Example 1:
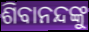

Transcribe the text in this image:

ଶିବାନନ୍ଦଙ୍କୁ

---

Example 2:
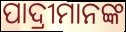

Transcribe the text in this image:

ପାଦ୍ରୀମାନଙ୍କ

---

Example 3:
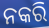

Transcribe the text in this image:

ନକରି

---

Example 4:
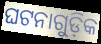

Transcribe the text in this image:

ଘଟନାଗୁଡ଼ିକ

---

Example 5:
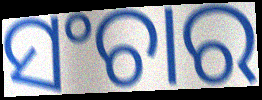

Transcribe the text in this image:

ସଂଚାର